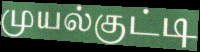
முயல்குட்டி